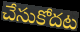
చేసుకోదట